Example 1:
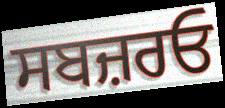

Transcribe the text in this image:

ਸਬਜ਼ਰਓ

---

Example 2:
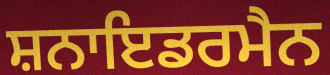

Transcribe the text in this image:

ਸ਼ਨਾਇਡਰਮੈਨ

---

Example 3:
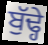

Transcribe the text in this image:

ਬੁੱਢ੍ਹੇ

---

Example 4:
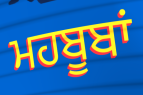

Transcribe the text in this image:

ਮਹਬੂਬਾਂ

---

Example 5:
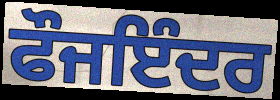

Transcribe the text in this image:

ਫੌਜਇੰਦਰ